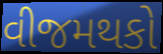
વીજમથકો